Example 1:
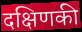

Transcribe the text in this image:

दक्षिणकी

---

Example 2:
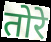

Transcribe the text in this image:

तोरे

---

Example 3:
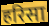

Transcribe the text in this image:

हरिसा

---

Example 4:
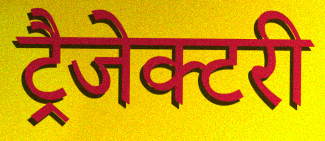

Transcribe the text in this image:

ट्रैजेक्टरी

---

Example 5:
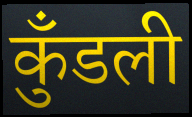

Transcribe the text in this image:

कुँडली